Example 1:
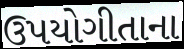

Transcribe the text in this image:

ઉપયોગીતાના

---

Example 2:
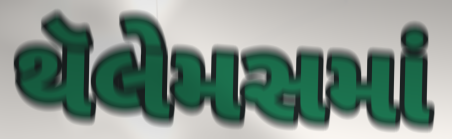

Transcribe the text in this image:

થૅલેમસમાં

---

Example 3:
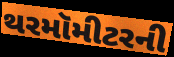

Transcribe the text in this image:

થરમૉમીટરની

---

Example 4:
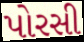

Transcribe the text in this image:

પોરસી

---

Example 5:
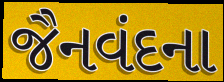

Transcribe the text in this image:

જૈનવંદના